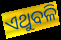
ଏଥୁବଳି